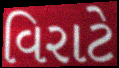
વિરાટે